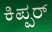
ಕಿಪ್ಪರ್